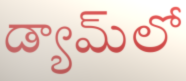
డ్యామ్‌లో